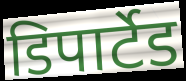
डिपार्टेड